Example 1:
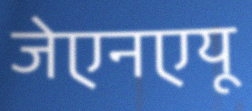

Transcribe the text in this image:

जेएनएयू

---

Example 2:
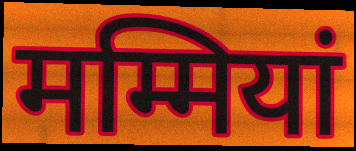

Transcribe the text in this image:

मम्मियां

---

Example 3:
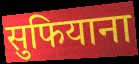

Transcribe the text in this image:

सुफियाना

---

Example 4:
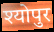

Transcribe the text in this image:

श्‍योपुर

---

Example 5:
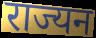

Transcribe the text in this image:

राज्यन